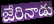
జేరినాడు